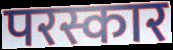
परस्कार